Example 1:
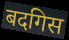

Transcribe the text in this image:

बदगिस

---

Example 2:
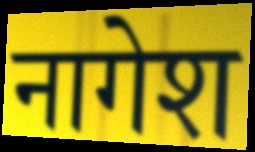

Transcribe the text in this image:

नागेश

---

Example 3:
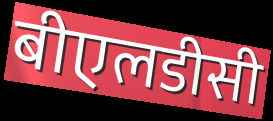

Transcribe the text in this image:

बीएलडीसी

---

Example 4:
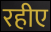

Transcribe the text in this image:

रहीए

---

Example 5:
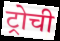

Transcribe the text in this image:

ट्रोची